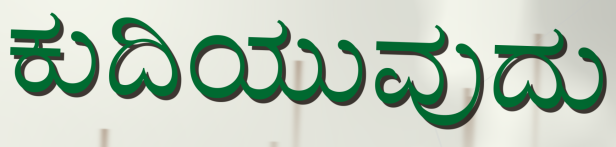
ಕುದಿಯುವುದು